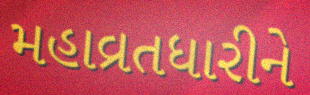
મહાવ્રતધારીને